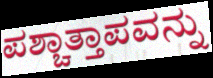
ಪಶ್ಚಾತ್ತಾಪವನ್ನು